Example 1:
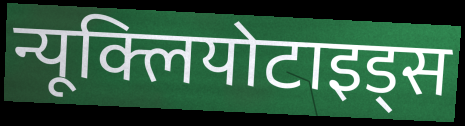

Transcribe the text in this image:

न्यूक्लियोटाइड्स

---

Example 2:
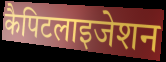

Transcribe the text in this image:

कैपिटलाइजेशन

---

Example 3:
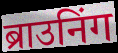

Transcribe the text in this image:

ब्राउनिंग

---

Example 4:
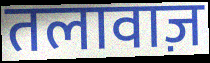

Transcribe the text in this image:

तलावाज़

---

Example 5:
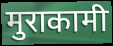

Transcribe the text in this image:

मुराकामी